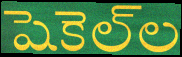
షెకెల్‌ల